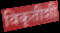
विकृतीशी